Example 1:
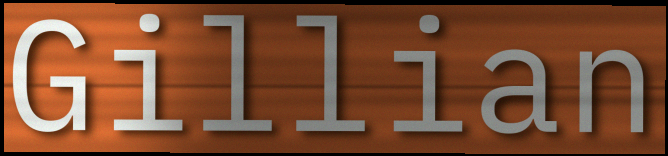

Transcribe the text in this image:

Gillian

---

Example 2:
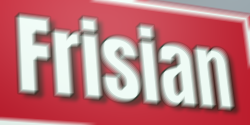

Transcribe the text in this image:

Frisian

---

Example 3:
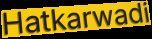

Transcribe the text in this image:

Hatkarwadi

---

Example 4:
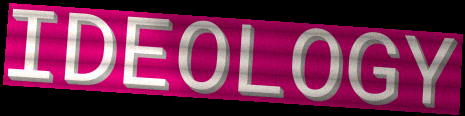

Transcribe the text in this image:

IDEOLOGY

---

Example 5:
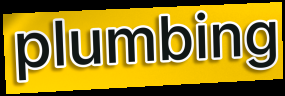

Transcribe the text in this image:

plumbing